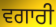
ਵਗਾਰੀ